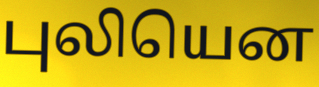
புலியென